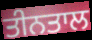
ਤੀਨਤਾਲ